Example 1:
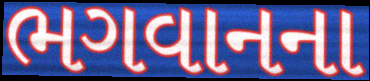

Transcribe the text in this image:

ભગવાનના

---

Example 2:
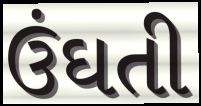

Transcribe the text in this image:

ઉંઘતી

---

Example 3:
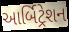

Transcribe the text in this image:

આર્બિટ્રેશન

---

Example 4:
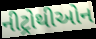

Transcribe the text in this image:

નીટ્રોથીઓન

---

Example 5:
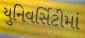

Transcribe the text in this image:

યુનિવર્સિટીમાં